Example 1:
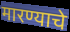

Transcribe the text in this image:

मारण्याचे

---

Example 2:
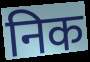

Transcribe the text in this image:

निक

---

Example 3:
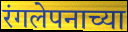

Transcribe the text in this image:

रंगलेपनाच्या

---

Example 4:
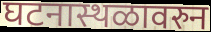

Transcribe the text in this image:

घटनास्थळावरुन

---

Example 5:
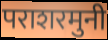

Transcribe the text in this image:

पराशरमुनी